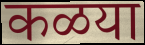
कळया